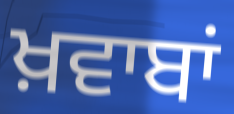
ਖ਼ਵਾਬਾਂ